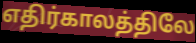
எதிர்காலத்திலே